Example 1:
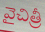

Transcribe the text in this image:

వైచిత్రీ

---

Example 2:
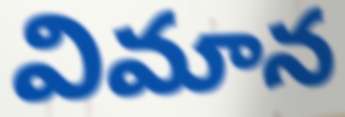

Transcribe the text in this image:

విమాన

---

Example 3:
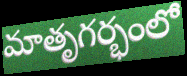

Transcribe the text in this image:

మాతృగర్భంలో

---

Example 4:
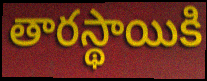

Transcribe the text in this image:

తారస్థాయికి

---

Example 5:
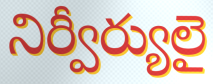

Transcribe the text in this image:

నిర్వీర్యులై